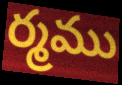
ర్మము